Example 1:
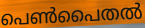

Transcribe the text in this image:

പെൺപൈതൽ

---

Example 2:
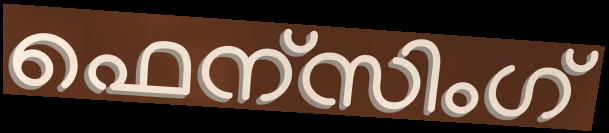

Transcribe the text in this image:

ഫെന്സിംഗ്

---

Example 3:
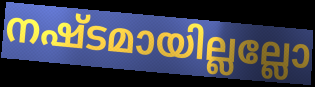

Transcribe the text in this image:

നഷ്ടമായില്ലല്ലോ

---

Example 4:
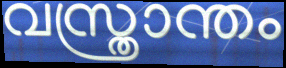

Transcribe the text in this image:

വസ്ത്രാന്തം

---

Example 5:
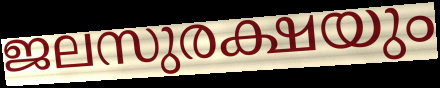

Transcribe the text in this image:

ജലസുരക്ഷയും